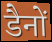
डैनों